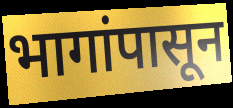
भागांपासून